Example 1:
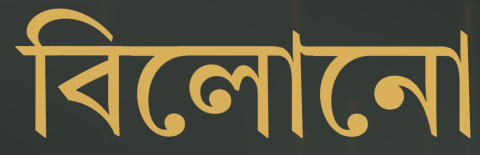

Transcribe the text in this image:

বিলোনো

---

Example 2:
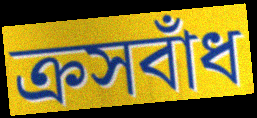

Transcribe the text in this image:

ক্রসবাঁধ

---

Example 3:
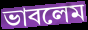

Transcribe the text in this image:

ভাবলেম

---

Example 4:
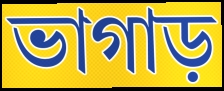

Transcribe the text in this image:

ভাগাড়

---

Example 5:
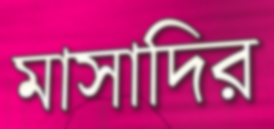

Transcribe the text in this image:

মাসাদির